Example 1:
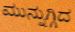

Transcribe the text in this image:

ಮುನ್ನುಗ್ಗಿದ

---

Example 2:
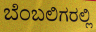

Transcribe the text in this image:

ಬೆಂಬಲಿಗರಲ್ಲಿ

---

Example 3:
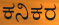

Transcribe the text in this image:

ಕನಿಕರ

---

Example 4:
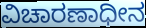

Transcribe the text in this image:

ವಿಚಾರಣಾಧೀನ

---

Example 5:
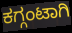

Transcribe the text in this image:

ಕಗ್ಗಂಟಾಗಿ